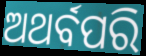
ଅଥର୍ବପରି